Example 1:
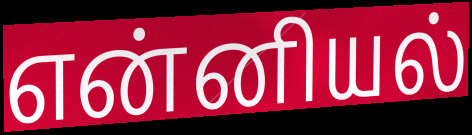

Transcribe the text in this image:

என்னியல்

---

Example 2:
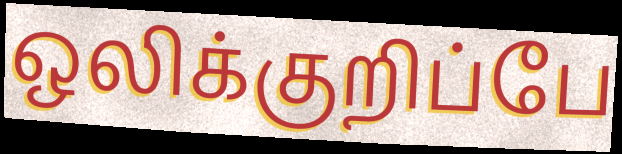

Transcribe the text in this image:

ஒலிக்குறிப்பே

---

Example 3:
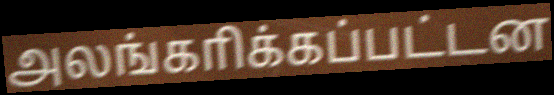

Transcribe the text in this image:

அலங்கரிக்கப்பட்டன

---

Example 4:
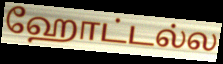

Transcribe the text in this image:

ஹோட்டல்ல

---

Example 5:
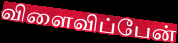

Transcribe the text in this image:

விளைவிப்பேன்